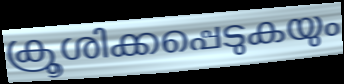
ക്രൂശിക്കപ്പെടുകയും